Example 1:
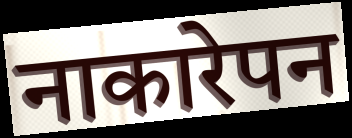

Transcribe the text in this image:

नाकारेपन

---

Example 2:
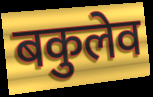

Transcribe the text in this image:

बकुलेव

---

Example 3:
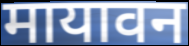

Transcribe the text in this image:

मायावन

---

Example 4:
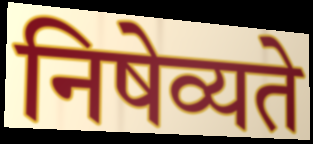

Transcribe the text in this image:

निषेव्यते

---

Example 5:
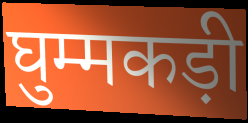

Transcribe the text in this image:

घुम्मकड़ी